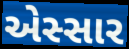
એસ્સાર